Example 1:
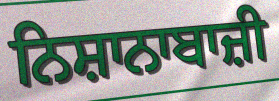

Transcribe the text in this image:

ਨਿਸ਼ਾਨਾਬਾਜ਼ੀ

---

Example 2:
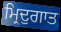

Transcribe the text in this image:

ਮ੍ਰਿਦੁਗਾਤ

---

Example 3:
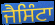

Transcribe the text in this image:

ਜੈਸਿੰਟਾ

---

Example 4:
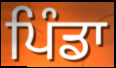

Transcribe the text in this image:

ਪਿੰਡਾ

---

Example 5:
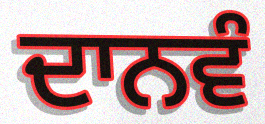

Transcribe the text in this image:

ਦਾਨਵੰ